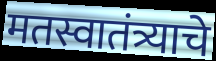
मतस्वातंत्र्याचे